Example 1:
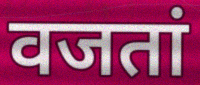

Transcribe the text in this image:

वजतां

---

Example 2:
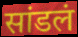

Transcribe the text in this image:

सांडलं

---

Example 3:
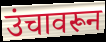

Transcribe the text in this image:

उंचावरून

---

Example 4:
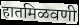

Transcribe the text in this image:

हातमिळवणी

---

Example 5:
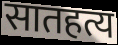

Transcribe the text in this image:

सातहत्य